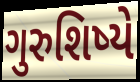
ગુરુશિષ્યે